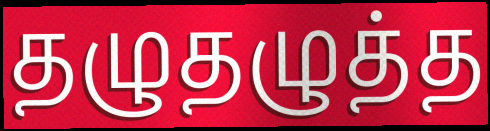
தழுதழுத்த